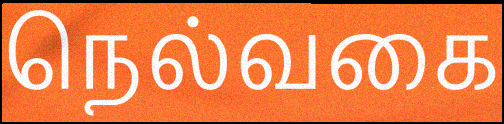
நெல்வகை